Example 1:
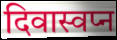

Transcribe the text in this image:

दिवास्‍वप्‍न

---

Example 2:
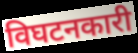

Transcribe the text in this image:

विघटनकारी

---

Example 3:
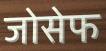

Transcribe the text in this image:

जोसेफ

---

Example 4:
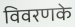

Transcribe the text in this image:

विवरणके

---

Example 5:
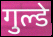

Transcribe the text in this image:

गुल्डे